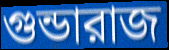
গুন্ডারাজ